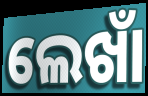
ଲେଖାଁ